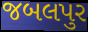
જબલપુર